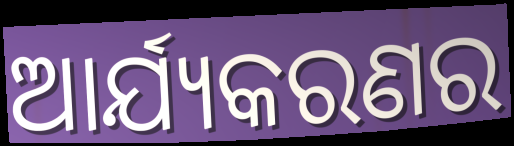
ଆର୍ଯ୍ୟକରଣର